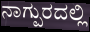
ನಾಗ್ಪುರದಲ್ಲಿ